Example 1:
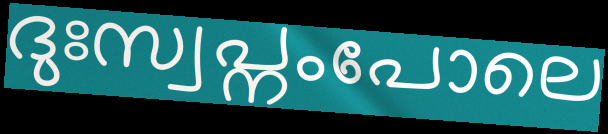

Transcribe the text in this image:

ദുഃസ്വപ്നംപോലെ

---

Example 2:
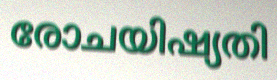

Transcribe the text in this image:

രോചയിഷ്യതി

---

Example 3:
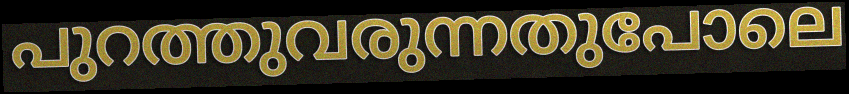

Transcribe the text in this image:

പുറത്തുവരുന്നതുപോലെ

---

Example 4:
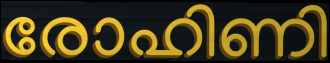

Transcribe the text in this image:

രോഹിണി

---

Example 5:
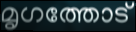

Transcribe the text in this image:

മൃഗത്തോട്